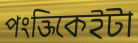
পংক্তিকেইটা